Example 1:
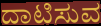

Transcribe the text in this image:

ದಾಟಿಸುವ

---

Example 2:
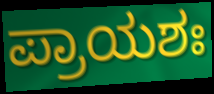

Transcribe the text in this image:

ಪ್ರಾಯಶಃ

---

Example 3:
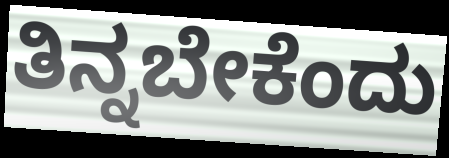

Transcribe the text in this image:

ತಿನ್ನಬೇಕೆಂದು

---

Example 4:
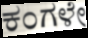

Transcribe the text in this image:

ಕಂಗಳೇ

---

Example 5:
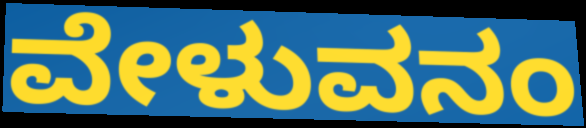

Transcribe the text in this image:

ವೇಳುವನಂ